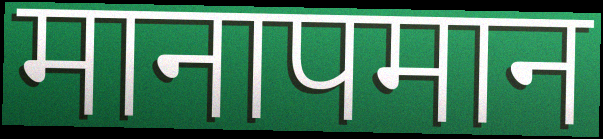
मानापमान